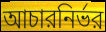
আচারনির্ভর